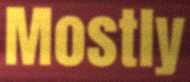
Mostly